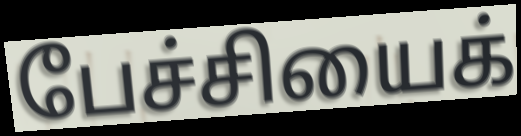
பேச்சியைக்